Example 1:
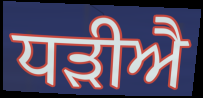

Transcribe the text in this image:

ਧੜੀਐ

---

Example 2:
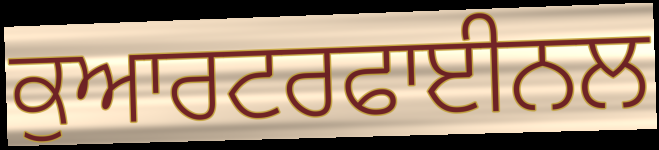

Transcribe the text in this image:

ਕੁਆਰਟਰਫਾਈਨਲ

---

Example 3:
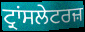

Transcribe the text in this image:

ਟ੍ਰਾਂਸਲੇਟਰਜ਼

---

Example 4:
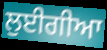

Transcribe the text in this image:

ਲੁਈਗੀਆ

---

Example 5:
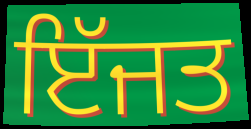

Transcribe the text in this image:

ਇੱਜਤ